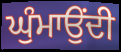
ਘੁੰਮਾਉਂਦੀ